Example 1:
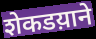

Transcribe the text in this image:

शेकडय़ाने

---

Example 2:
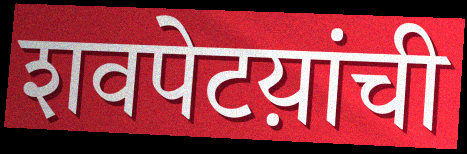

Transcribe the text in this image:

शवपेटय़ांची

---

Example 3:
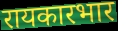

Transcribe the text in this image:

रायकारभार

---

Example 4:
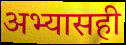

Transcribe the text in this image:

अभ्यासही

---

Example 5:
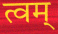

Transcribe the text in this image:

त्वम्